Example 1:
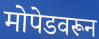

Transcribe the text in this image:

मोपेडवरून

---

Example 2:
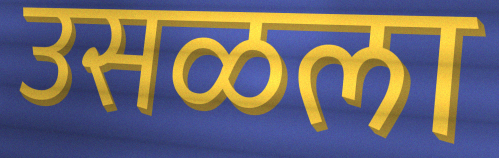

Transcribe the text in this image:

उसळला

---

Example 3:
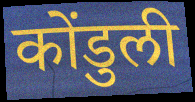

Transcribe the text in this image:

कोंडुली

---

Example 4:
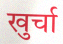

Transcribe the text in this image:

खुर्चा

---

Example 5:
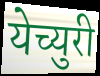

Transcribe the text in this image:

येच्युरी